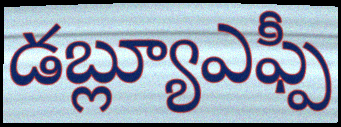
డబ్ల్యూఎఫ్పీ